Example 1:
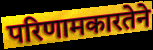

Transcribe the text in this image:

परिणामकारतेने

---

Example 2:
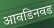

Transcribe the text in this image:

आवडिनवड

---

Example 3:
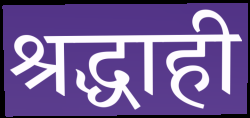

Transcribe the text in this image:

श्रद्धाही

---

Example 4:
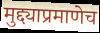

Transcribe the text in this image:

मुद्द्याप्रमाणेच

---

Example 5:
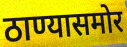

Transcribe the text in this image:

ठाण्यासमोर